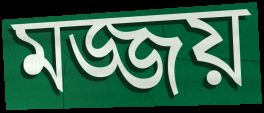
মজ্জয়